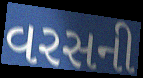
વરસની